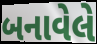
બનાવેલે